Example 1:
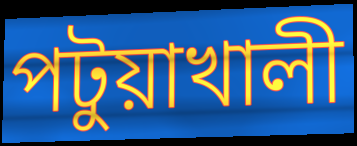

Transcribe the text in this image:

পটুয়াখালী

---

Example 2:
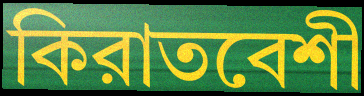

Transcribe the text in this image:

কিরাতবেশী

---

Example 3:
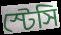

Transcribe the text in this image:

স্টেসি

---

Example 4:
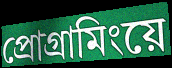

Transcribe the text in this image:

প্রোগ্রামিংয়ে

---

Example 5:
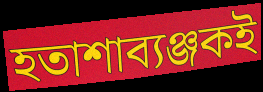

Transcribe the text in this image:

হতাশাব্যঞ্জকই